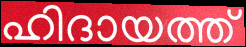
ഹിദായത്ത്